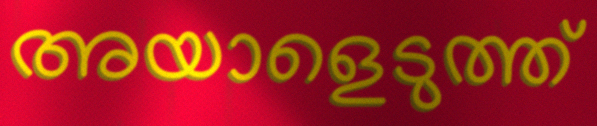
അയാളെടുത്ത്